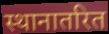
स्थानातरित